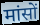
मांसों